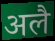
अलै